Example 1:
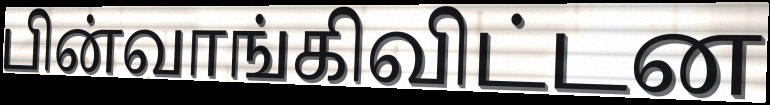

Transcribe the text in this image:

பின்வாங்கிவிட்டன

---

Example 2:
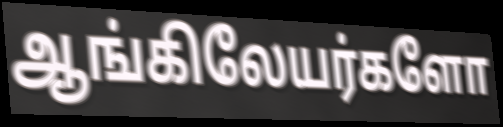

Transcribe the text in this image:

ஆங்கிலேயர்களோ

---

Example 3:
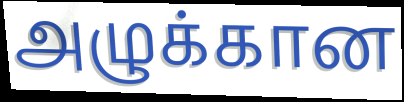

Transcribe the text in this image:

அழுக்கான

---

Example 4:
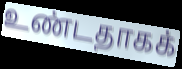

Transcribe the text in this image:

உண்டதாகக்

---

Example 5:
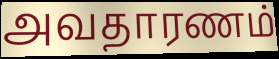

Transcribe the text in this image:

அவதாரணம்